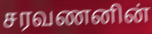
சரவணனின்